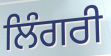
ਲਿੰਗਰੀ